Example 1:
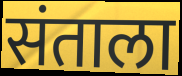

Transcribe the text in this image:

संताला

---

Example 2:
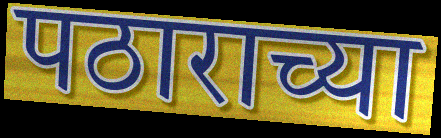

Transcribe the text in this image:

पठाराच्या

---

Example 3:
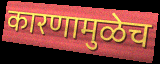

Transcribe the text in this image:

कारणामुळेच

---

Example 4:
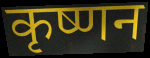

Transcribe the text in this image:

कृष्णन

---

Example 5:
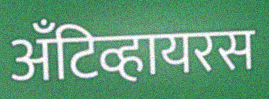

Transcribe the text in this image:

अँटिव्हायरस